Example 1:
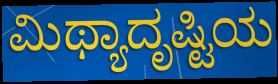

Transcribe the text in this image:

ಮಿಥ್ಯಾದೃಷ್ಟಿಯ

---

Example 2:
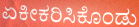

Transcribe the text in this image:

ಏಕೀಕರಿಸಿಕೊಂಡು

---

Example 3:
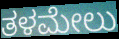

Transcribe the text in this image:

ತಳಮೇಲು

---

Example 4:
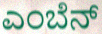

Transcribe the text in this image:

ಎಂಬೆನ್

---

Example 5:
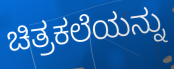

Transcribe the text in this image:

ಚಿತ್ರಕಲೆಯನ್ನು